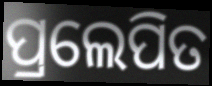
ପ୍ରଲେପିତ